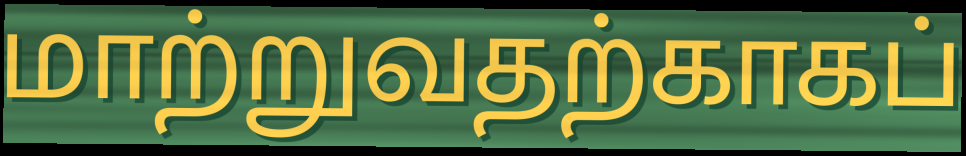
மாற்றுவதற்காகப்